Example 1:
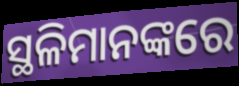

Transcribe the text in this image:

ସ୍ଥଳିମାନଙ୍କରେ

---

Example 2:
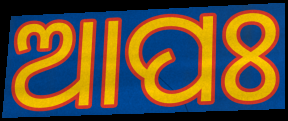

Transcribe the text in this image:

ଆପଃ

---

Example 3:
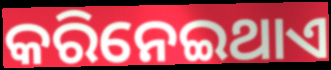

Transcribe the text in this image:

କରିନେଇଥାଏ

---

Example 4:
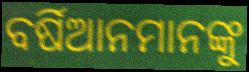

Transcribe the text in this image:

ବର୍ଷିଆନମାନଙ୍କୁ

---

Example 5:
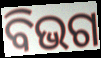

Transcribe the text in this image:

ବିଭଗ